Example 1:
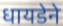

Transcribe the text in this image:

धायडेने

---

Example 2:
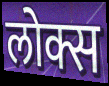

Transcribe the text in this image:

लोक्स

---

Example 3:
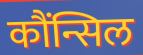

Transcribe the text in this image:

कौंन्सिल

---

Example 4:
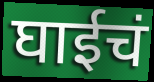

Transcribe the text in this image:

घाईचं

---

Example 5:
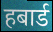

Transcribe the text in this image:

हबार्ड